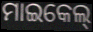
ମାଇକେଲ୍